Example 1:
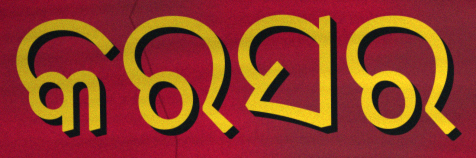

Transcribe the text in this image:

କରସର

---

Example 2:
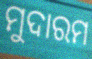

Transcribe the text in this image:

ମୁଦାରମ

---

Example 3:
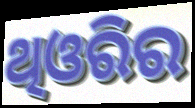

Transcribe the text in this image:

ଥିଓରିର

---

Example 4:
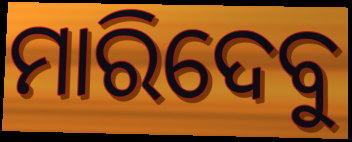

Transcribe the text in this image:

ମାରିଦେବୁ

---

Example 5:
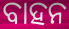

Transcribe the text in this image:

ବାହନ